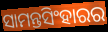
ସାମନ୍ତସିଂହାରର